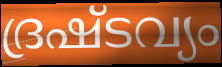
ദ്രഷ്ടവ്യം